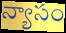
న్యాసం